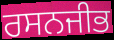
ਰਸਨਜੀਭ